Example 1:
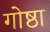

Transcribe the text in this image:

गोष्ठा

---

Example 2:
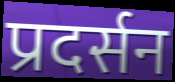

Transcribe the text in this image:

प्रदर्सन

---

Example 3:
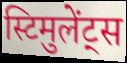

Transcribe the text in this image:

स्टिमुलेंट्स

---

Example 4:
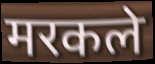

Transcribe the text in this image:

मरकले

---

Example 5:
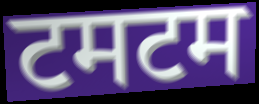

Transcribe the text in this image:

टमटम